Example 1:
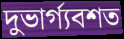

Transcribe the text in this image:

দুভার্গ্যবশত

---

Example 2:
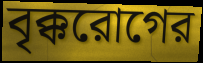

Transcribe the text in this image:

বৃক্করোগের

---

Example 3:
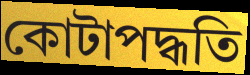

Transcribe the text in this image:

কোটাপদ্ধতি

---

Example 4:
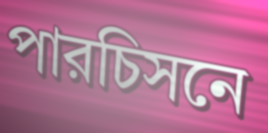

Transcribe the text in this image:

পারচিসনে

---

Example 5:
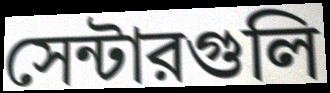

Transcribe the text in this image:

সেন্টারগুলি